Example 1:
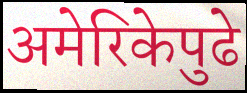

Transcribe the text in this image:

अमेरिकेपुढे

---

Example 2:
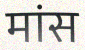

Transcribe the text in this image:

मांस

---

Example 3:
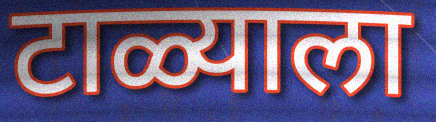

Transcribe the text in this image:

टाळ्याला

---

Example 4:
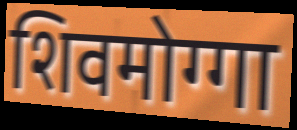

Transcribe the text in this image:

शिवमोग्गा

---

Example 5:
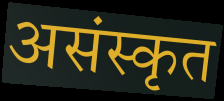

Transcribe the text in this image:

असंस्कृत